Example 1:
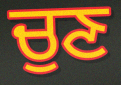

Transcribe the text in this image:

ਚੁਣ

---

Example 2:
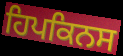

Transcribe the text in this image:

ਹਿਪਕਿਨਸ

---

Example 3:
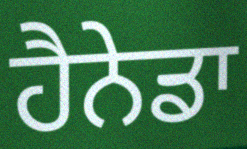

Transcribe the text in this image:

ਹੈਨੇਡਾ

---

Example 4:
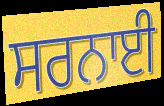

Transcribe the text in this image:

ਸਰਨਾਈ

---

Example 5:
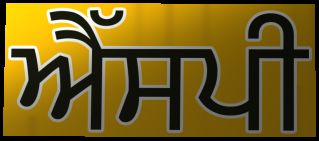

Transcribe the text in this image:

ਐੱਸਪੀ